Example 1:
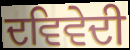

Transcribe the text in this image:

ਦਵਿਵੇਦੀ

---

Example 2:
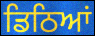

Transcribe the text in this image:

ਡਿਠਿਆਂ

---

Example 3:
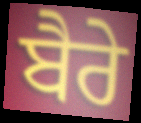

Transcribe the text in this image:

ਬੈਰੇ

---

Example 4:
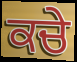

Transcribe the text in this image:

ਕਚੇ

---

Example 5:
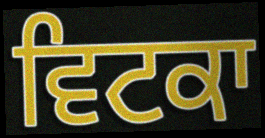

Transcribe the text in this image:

ਵਿਟਕਾ